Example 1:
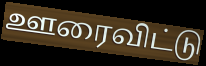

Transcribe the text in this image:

ஊரைவிட்டு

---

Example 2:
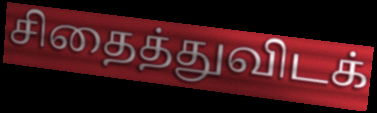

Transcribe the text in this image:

சிதைத்துவிடக்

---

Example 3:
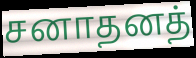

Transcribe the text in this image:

சனாதனத்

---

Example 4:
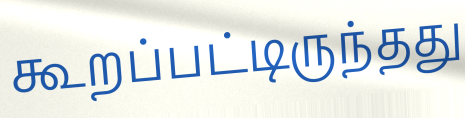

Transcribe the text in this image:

கூறப்பட்டிருந்தது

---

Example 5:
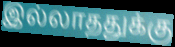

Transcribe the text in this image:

இல்லாததுக்கு